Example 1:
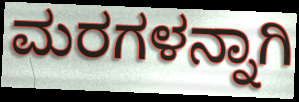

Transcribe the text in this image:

ಮರಗಳನ್ನಾಗಿ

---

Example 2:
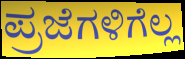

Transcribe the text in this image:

ಪ್ರಜೆಗಳಿಗೆಲ್ಲ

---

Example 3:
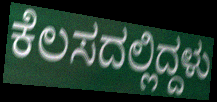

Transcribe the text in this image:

ಕೆಲಸದಲ್ಲಿದ್ದಳು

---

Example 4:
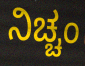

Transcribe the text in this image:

ನಿಚ್ಚಂ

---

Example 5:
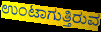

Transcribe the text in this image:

ಉಂಟಾಗುತ್ತಿರುವ